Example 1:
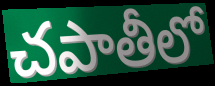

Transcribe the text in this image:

చపాతీలో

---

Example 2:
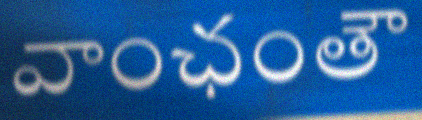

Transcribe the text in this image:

వాంఛంతౌ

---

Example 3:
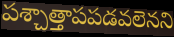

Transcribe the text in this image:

పశ్చాత్తాపపడవలెనని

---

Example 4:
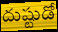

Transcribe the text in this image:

దుష్టుడో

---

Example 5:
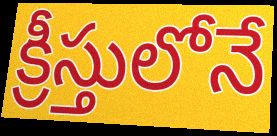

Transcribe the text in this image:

క్రీస్తులోనే